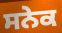
ਸਨੇਕ